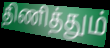
திணித்தும்